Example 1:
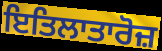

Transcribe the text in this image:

ਇਤਿਲਾਤਾਰੋਜ਼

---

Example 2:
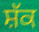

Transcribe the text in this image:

ਸ਼ੱਕ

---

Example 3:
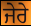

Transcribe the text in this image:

ਜੇਰੇ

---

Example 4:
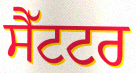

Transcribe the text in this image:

ਸੈੱਟਟਰ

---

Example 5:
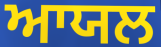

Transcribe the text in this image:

ਆਯਲ